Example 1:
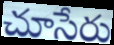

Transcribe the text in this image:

చూసేరు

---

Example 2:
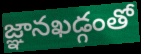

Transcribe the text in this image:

జ్ఞానఖడ్గంతో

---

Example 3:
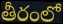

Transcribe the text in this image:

తీరంలో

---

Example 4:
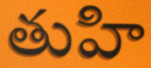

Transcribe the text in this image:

తుహి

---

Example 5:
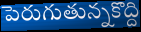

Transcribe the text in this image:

పెరుగుతున్నకొద్ది